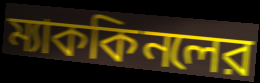
ম্যাককিনলের